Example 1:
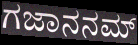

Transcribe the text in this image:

ಗಜಾನನಮ್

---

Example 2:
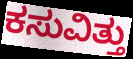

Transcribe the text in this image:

ಕಸುವಿತ್ತು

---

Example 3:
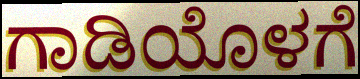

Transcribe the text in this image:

ಗಾಡಿಯೊಳಗೆ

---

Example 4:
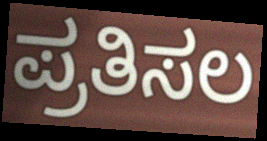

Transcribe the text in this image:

ಪ್ರತಿಸಲ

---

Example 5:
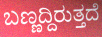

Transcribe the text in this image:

ಬಣ್ಣದ್ದಿರುತ್ತದೆ